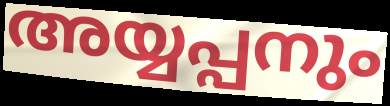
അയ്യപ്പനും